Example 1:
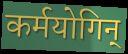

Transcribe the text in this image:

कर्मयोगिन्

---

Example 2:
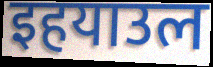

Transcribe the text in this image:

इहयाउल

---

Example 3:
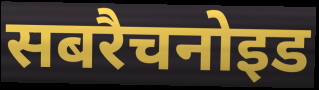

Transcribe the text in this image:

सबरैचनोइड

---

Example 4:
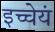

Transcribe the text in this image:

इच्चेयं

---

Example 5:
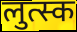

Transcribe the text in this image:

लुत्स्क